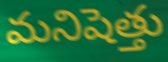
మనిషెత్తు